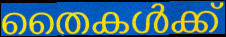
തൈകൾക്ക്